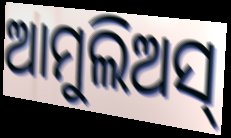
ଆମୁଲିଅସ୍